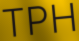
TPH